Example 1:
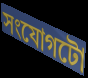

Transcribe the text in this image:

সংযোগটো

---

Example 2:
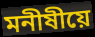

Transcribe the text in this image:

মনীষীয়ে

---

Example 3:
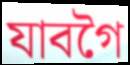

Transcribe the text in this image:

যাবগৈ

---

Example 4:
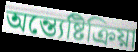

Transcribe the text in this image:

অন্ত্যেষ্টিক্ৰিয়া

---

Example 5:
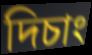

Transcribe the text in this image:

দিচাং